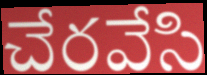
చేరవేసి